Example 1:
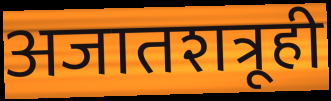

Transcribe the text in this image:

अजातशत्रूही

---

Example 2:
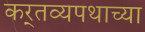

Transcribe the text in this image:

कर्तव्यपथाच्या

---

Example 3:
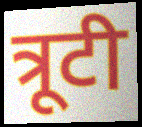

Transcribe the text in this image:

त्रूटी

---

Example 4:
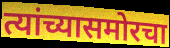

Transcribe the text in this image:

त्यांच्यासमोरचा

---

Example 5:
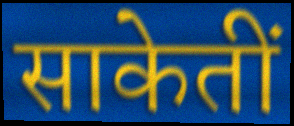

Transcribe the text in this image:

साकेतीं